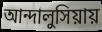
আন্দালুসিয়ায়